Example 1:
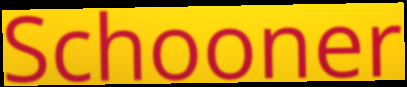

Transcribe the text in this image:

Schooner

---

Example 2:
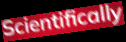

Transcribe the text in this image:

Scientifically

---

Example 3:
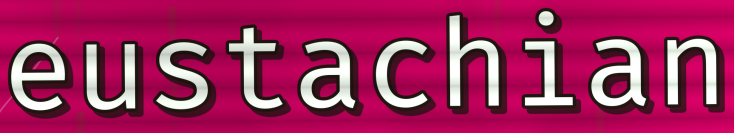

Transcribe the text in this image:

eustachian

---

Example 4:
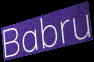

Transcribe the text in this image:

Babru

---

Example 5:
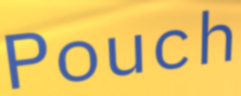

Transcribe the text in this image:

Pouch